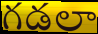
గడలా